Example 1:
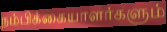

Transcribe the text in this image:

நம்பிக்கையாளர்களும்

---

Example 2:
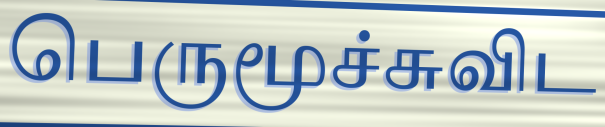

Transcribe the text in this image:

பெருமூச்சுவிட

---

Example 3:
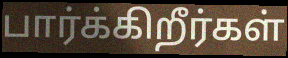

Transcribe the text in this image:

பார்க்கிறீர்கள்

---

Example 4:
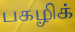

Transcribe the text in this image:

பகழிக்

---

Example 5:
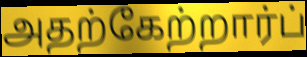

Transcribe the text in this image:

அதற்கேற்றார்ப்